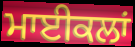
ਮਾਈਕਲਾਂ